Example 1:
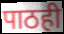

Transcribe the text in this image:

पाठही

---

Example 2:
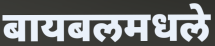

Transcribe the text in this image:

बायबलमधले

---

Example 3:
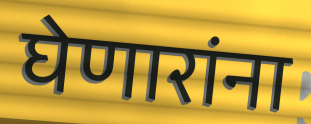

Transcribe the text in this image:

घेणारांना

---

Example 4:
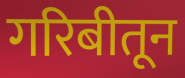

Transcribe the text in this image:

गरिबीतून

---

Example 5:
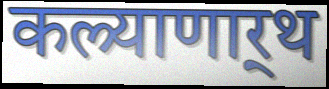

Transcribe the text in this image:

कल्याणार्थ